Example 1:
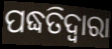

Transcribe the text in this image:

ପଦ୍ଧତିଦ୍ଵାରା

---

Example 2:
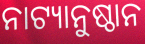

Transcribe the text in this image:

ନାଟ୍ୟାନୁଷ୍ଠାନ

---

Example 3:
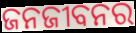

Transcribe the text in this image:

ଜନଜୀବନର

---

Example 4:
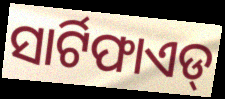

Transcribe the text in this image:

ସାର୍ଟିଫାଏଡ୍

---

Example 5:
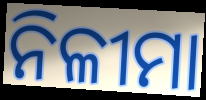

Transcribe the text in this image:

ନିଳୀମା